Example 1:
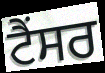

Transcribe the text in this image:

ਟੈਂਸਰ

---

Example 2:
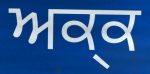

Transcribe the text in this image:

ਅਕ੍ਕ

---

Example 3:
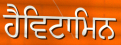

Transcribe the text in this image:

ਹੈਵਿਟਾਮਿਨ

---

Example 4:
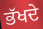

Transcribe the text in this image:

ਭੱਖਦੇ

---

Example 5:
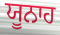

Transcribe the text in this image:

ਯੂਨਾਹ